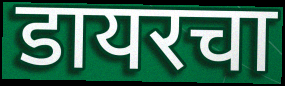
डायरचा